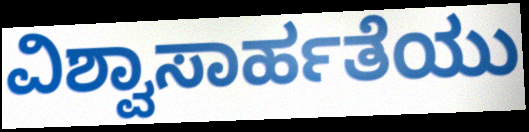
ವಿಶ್ವಾಸಾರ್ಹತೆಯು